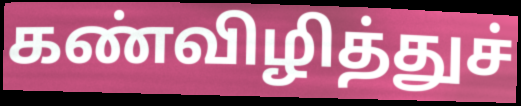
கண்விழித்துச்